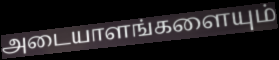
அடையாளங்களையும்